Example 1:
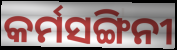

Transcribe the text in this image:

କର୍ମସଙ୍ଗିନୀ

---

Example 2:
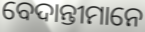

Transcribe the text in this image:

ବେଦାନ୍ତୀମାନେ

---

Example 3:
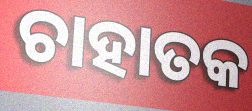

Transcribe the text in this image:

ଚାହାତକ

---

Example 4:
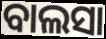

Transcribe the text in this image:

ବାଲସା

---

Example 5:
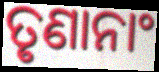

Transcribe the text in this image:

ତୃଣାନାଂ